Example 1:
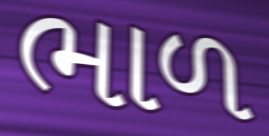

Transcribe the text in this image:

ભાળ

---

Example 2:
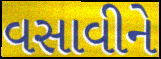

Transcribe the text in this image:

વસાવીને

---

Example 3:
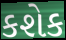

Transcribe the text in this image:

કશેક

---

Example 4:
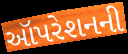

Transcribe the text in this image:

ઑપરેશનની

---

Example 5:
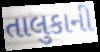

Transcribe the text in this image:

તાલુકાની